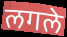
लगले